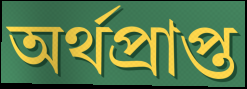
অর্থপ্রাপ্ত